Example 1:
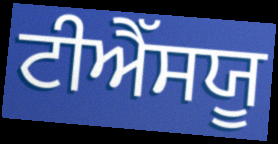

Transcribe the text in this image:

ਟੀਐੱਸਯੂ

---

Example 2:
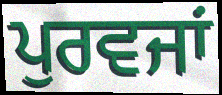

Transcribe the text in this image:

ਪੁਰਵਜਾਂ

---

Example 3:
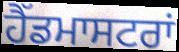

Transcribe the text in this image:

ਹੈੱਡਮਾਸਟਰਾਂ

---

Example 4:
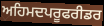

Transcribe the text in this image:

ਅਹਿਮਦਪਰੂਫਰੀਡਰ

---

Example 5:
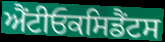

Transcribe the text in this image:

ਐਂਟੀਓਕਸਿਡੈਂਟਸ